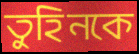
তুহিনকে